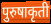
पुरुषाकृती